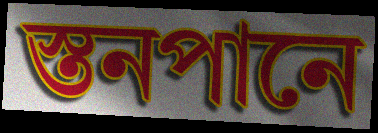
স্তনপানে